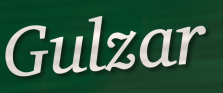
Gulzar